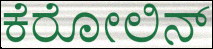
ಕೆರೋಲಿನ್